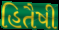
હિતૈષી